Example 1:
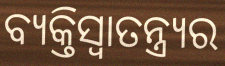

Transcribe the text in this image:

ବ୍ୟକ୍ତିସ୍ୱାତନ୍ତ୍ର୍ୟର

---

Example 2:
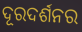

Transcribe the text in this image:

ଦୂରଦର୍ଶନର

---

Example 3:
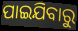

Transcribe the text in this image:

ପାଇଯିବାରୁ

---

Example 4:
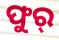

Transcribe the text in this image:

ଫୁର୍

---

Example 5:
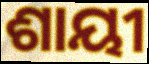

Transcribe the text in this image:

ଶାୟୀ